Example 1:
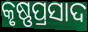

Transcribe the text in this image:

କୃଷ୍ଣପ୍ରସାଦ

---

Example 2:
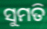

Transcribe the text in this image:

ସୁମତି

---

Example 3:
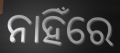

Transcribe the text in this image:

ନାହିଁରେ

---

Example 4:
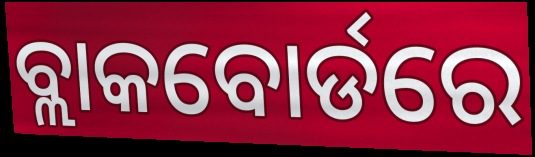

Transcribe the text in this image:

ବ୍ଲାକବୋର୍ଡରେ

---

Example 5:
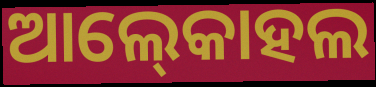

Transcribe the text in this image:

ଆଲ୍‍କୋହଲ